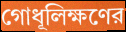
গোধূলিক্ষণের